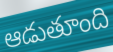
ఆడుతూంది